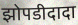
झोपडीदादा